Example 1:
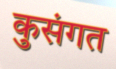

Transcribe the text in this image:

कुसंगत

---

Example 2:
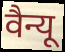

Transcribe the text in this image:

वैन्यू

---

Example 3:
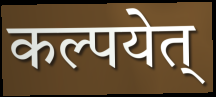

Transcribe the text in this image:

कल्पयेत्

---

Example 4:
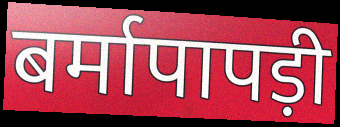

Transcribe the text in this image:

बर्मापापड़ी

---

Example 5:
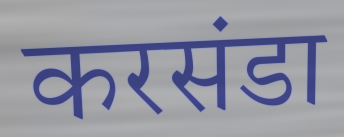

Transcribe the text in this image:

करसंडा